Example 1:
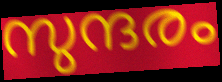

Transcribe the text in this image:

സുന്ദരം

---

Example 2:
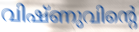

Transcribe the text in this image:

വിഷ്ണുവിന്റെ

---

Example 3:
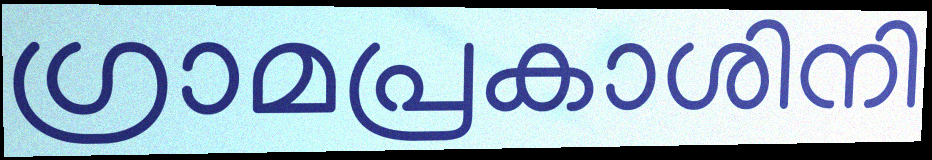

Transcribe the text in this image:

ഗ്രാമപ്രകാശിനി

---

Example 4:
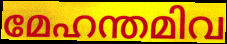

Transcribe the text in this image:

മേഹന്തമിവ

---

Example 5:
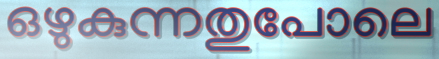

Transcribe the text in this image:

ഒഴുകുന്നതുപോലെ